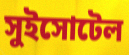
সুইসোটেল